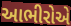
આભીરોએ